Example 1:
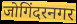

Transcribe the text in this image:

जोगिंदरनगर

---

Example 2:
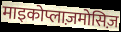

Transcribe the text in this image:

माइकोप्लाज़मोसिज़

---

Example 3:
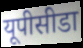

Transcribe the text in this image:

यूपीसीडा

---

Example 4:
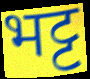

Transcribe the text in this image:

भट्ट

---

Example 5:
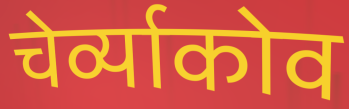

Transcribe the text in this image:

चेर्व्याकोव